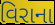
વિરાના